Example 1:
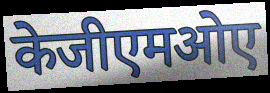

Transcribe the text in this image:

केजीएमओए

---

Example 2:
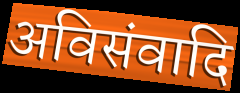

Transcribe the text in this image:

अविसंवादि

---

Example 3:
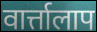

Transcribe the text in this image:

वार्त्तालाप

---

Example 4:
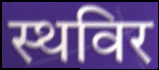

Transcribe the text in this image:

स्थविर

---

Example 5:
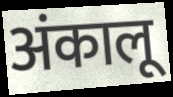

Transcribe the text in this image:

अंकालू